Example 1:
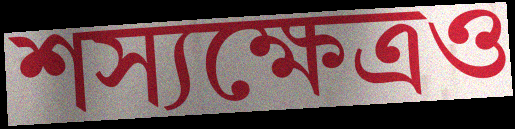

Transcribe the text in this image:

শস্যক্ষেত্রও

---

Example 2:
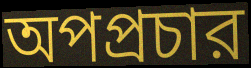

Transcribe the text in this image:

অপপ্রচার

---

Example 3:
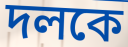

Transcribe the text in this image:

দলকে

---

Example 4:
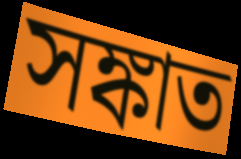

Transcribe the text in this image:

সঙ্কাত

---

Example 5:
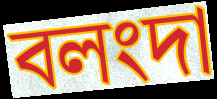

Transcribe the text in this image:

বলংদা